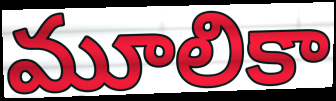
మూలికా